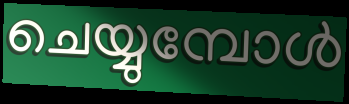
ചെയ്യുമ്പോൾ